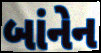
બાંનેન